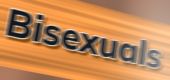
Bisexuals